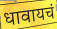
धावायचं